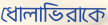
ধোলাভিরাকে